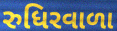
રુધિરવાળા